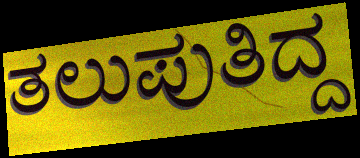
ತಲುಪುತಿದ್ದ